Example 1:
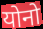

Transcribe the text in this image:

योनो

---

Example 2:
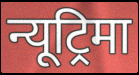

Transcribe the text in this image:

न्यूट्रिमा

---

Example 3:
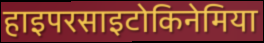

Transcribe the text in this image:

हाइपरसाइटोकिनेमिया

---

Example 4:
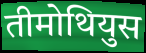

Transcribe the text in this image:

तीमोथियुस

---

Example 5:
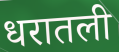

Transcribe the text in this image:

धरातली